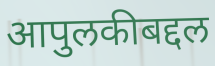
आपुलकीबद्दल